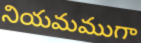
నియమముగా